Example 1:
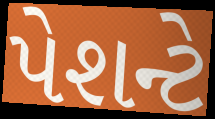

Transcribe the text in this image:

પેશન્ટે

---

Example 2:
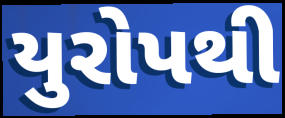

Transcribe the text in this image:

યુરોપથી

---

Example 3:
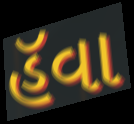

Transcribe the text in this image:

હૅવા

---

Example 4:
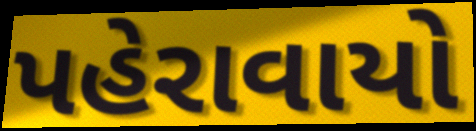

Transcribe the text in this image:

પહેરાવાયો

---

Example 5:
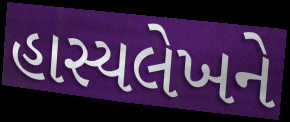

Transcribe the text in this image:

હાસ્યલેખને